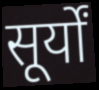
सूर्यों